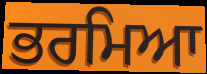
ਭਰਮਿਆ